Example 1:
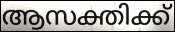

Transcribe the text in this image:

ആസക്തിക്ക്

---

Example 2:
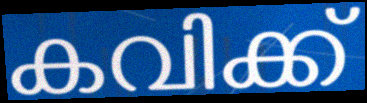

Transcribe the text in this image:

കവിക്ക്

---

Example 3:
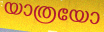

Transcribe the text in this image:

യാത്രയോ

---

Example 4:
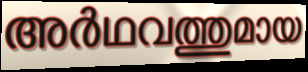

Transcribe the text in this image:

അർഥവത്തുമായ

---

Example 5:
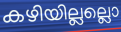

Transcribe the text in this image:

കഴിയില്ലല്ലൊ